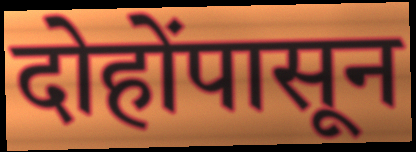
दोहोंपासून